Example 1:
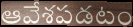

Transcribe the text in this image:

ఆవేశపడటం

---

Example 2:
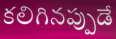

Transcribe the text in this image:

కలిగినప్పుడే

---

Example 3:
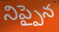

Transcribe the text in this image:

నిప్పైన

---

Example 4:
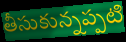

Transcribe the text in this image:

తీసుకున్నప్పటి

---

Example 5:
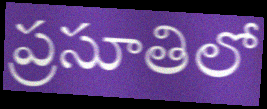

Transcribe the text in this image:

ప్రసూతిలో